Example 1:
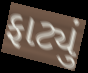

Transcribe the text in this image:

ફાટ્યું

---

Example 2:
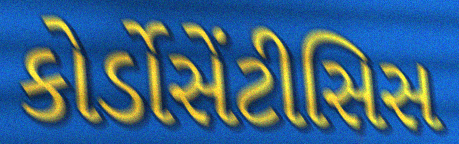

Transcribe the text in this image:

કોર્ડોસેંટીસિસ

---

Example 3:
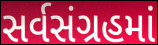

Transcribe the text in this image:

સર્વસંગ્રહમાં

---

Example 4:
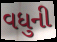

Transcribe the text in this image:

વધુની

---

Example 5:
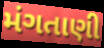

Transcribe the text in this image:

મંગતાણી